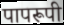
पापरूपी